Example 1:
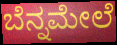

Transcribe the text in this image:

ಬೆನ್ನಮೇಲೆ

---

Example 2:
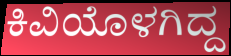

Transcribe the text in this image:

ಕಿವಿಯೊಳಗಿದ್ದ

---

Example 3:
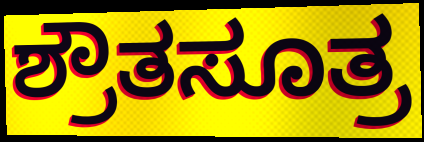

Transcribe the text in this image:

ಶ್ರೌತಸೂತ್ರ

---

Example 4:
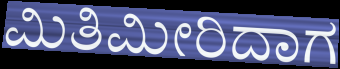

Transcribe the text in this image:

ಮಿತಿಮೀರಿದಾಗ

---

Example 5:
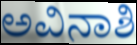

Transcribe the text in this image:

ಅವಿನಾಶಿ